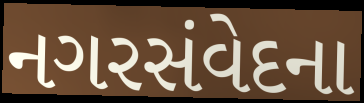
નગરસંવેદના